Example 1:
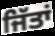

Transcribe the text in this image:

ਜਿੱਤਾਂ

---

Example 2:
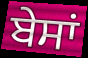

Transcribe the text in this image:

ਬੇਸਾਂ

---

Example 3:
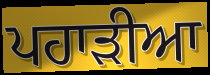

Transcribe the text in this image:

ਪਹਾੜੀਆ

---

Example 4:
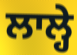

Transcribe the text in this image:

ਲਾਲ੍ਹੇ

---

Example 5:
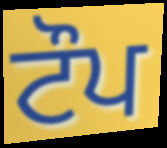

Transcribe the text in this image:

ਟੌਪ